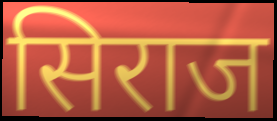
सिराज